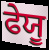
ਫੇਯੂ